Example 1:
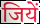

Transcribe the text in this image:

जियें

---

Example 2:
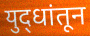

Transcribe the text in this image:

युद्धांतून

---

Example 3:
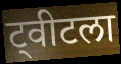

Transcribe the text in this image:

ट्वीटला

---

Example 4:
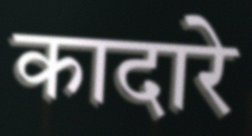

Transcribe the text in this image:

कादारे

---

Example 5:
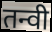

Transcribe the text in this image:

तन्वी